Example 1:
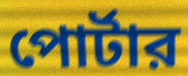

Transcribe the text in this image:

পোর্টার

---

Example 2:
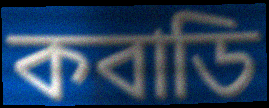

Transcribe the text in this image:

কবাডি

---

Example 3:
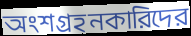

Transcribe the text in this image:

অংশগ্রহনকারিদের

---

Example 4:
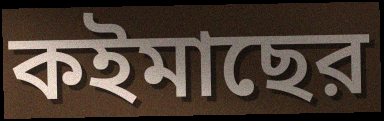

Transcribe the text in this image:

কইমাছের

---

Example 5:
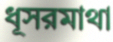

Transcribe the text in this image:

ধূসরমাথা